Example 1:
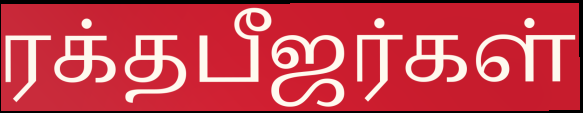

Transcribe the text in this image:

ரக்தபீஜர்கள்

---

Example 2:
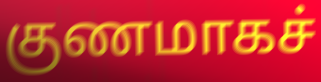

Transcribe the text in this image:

குணமாகச்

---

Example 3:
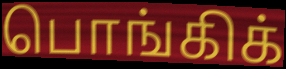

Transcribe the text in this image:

பொங்கிக்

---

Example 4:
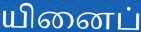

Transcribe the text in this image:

யினைப்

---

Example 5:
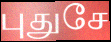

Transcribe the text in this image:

புதுசே